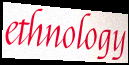
ethnology